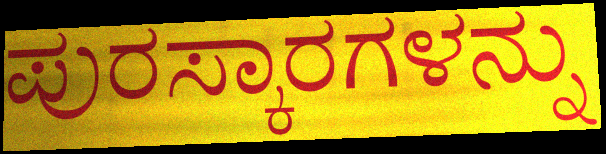
ಪುರಸ್ಕಾರಗಳನ್ನು